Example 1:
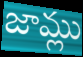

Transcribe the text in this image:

జామ్లు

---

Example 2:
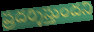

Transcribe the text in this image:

ప్రదర్శిస్తుందని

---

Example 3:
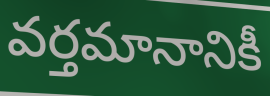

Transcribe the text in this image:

వర్తమానానికీ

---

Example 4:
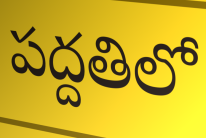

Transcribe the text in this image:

పద్దతిలో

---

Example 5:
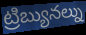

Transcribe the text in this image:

ట్రిబ్యునల్ను